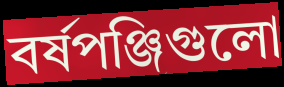
বর্ষপঞ্জিগুলো